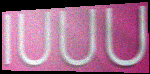
IUUU